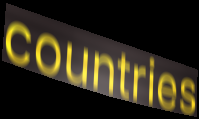
countries